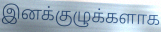
இனக்குழுக்களாக